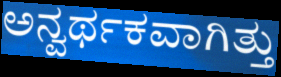
ಅನ್ವರ್ಥಕವಾಗಿತ್ತು